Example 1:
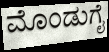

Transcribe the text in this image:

ಮೊಂಡುಗೈ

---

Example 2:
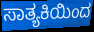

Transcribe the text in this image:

ಸಾತ್ಯಕಿಯಿಂದ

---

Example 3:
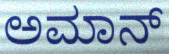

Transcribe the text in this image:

ಅಮಾನ್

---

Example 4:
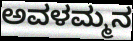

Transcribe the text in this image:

ಅವಳಮ್ಮನ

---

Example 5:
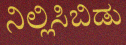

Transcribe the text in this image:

ನಿಲ್ಲಿಸಿಬಿಡು